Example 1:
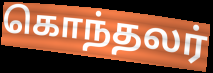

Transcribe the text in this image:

கொந்தலர்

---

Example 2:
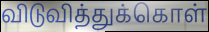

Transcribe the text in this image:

விடுவித்துக்கொள்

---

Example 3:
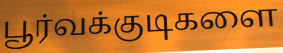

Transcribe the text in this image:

பூர்வக்குடிகளை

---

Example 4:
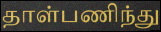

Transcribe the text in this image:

தாள்பணிந்து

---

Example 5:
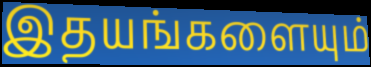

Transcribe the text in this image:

இதயங்களையும்